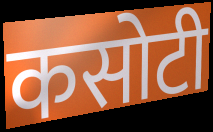
कसोटी